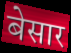
बेसार